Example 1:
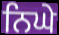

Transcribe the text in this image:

ਨਿਘੇ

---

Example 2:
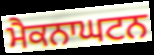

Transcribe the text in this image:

ਮੈਕਨਾਘਟਨ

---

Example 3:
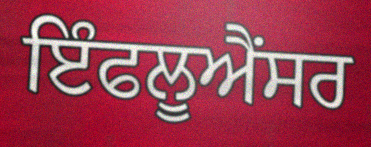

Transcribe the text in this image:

ਇੰਫਲੂਐਂਸਰ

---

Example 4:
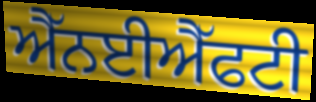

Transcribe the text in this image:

ਐੱਨਈਐੱਫਟੀ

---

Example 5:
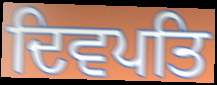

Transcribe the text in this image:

ਦਿਵਪਤਿ